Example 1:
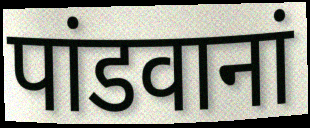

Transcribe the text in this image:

पांडवानां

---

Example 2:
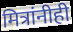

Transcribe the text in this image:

मित्रांनीही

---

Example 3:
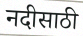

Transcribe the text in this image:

नदीसाठी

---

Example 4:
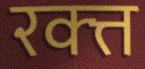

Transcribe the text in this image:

रक्त्त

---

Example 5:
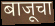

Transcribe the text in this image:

बाजूचा